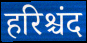
हरिश्चंद